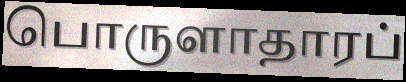
பொருளாதாரப்